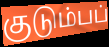
குடும்பப்